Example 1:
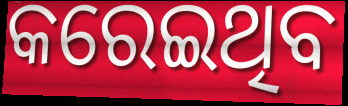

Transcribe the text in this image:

କରେଇଥିବ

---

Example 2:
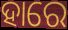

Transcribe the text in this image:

ହାରେ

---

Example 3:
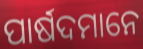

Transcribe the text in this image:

ପାର୍ଷଦମାନେ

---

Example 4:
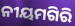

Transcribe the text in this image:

ନୀୟମଗିରି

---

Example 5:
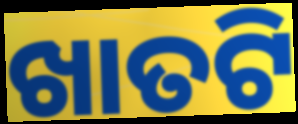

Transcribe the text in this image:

ଖାତଟି